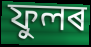
ফুলৰ